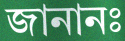
জানানঃ